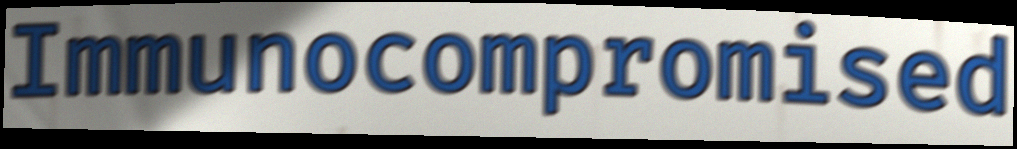
Immunocompromised